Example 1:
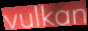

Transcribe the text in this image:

vulkan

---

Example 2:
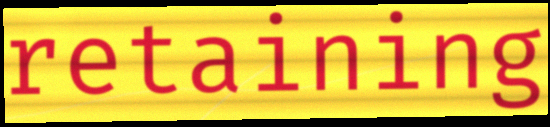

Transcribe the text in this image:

retaining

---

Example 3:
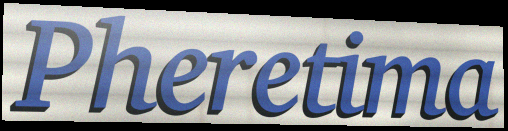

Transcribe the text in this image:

Pheretima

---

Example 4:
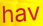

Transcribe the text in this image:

hav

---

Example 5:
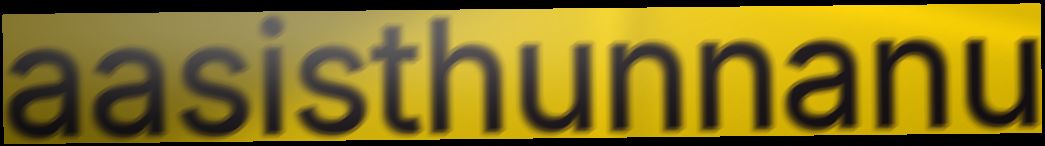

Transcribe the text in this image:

aasisthunnanu